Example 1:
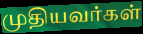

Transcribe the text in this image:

முதியவர்கள்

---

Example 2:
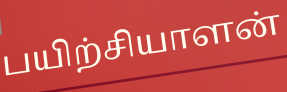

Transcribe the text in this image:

பயிற்சியாளன்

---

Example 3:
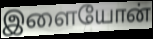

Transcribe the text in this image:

இளையோன்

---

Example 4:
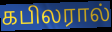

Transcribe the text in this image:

கபிலரால்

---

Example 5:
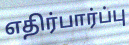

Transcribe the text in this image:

எதிர்பார்ப்பு